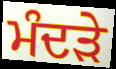
ਮੰਦੜੇ